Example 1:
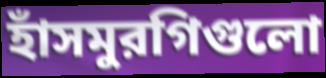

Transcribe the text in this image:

হাঁসমুরগিগুলো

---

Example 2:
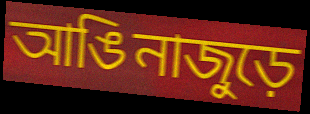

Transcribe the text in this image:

আঙিনাজুড়ে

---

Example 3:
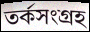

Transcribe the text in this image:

তর্কসংগ্রহ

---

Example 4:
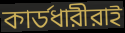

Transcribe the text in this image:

কার্ডধারীরাই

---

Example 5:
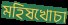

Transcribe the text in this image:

মহিষখোচা